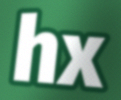
hx